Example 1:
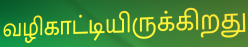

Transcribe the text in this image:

வழிகாட்டியிருக்கிறது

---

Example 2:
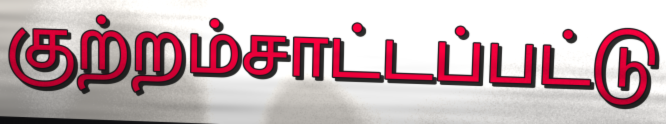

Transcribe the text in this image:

குற்றம்சாட்டப்பட்டு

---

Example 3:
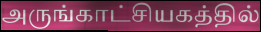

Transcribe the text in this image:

அருங்காட்சியகத்தில்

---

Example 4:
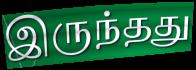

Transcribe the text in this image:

இருந்தது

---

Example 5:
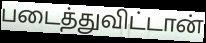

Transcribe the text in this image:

படைத்துவிட்டான்